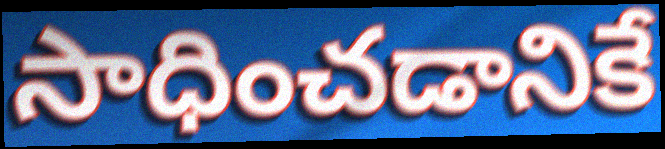
సాధించడానికే